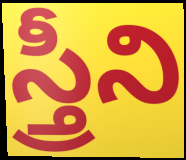
స్త్రీని